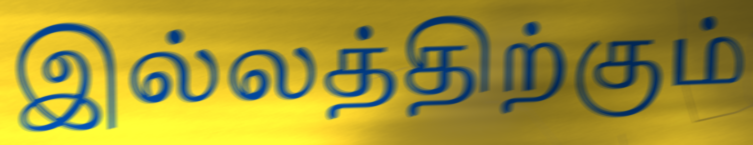
இல்லத்திற்கும்